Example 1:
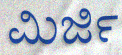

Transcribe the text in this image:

ಮಿರ್ಜಿ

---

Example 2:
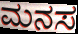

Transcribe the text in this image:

ಮನಸ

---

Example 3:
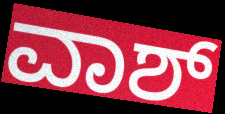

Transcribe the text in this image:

ವಾಶ್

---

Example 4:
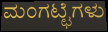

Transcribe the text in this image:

ಮಂಗಟ್ಟೆಗಳು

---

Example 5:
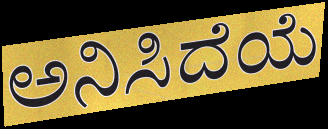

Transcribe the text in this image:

ಅನಿಸಿದೆಯೆ